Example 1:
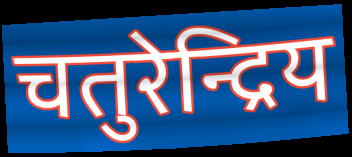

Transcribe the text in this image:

चतुरेन्द्रिय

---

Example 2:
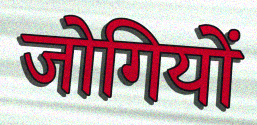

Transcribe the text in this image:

जोगियों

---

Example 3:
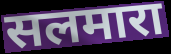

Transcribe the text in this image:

सलमारा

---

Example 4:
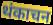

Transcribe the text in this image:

थंकाचन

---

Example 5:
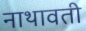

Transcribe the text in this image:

नाथावती